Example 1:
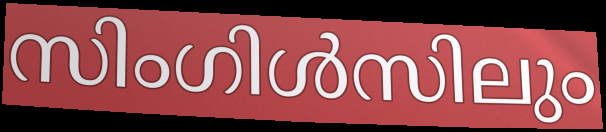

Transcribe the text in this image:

സിംഗിൾസിലും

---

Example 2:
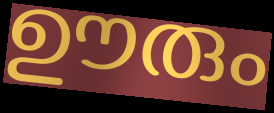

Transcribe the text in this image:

ഊരും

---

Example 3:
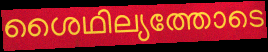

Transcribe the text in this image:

ശൈഥില്യത്തോടെ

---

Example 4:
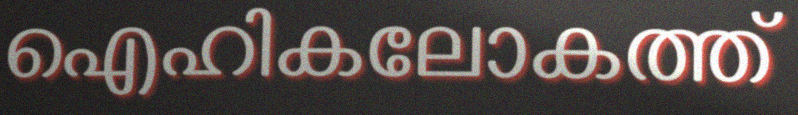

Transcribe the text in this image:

ഐഹികലോകത്ത്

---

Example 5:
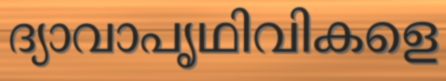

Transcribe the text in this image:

ദ്യാവാപൃഥിവികളെ